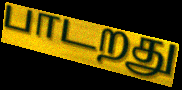
பாடறது